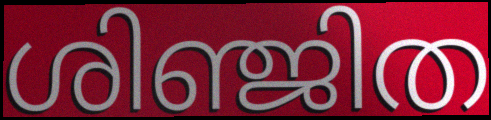
ശിഞ്ജിത